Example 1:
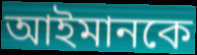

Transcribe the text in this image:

আইমানকে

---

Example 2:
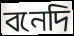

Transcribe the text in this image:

বনেদি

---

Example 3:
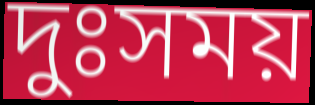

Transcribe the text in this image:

দুঃসময়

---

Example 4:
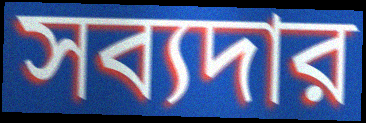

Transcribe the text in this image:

সব্যদার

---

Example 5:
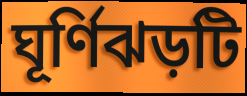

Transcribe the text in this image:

ঘূর্ণিঝড়টি